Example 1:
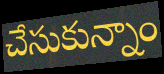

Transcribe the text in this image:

చేసుకున్నాం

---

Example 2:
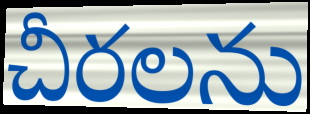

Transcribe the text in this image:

చీరలను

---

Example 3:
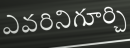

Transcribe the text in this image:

ఎవరినిగూర్చి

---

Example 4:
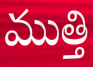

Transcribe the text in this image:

ముత్తి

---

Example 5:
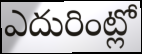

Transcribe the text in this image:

ఎదురింట్లో